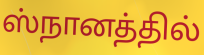
ஸ்நானத்தில்